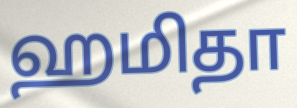
ஹமிதா